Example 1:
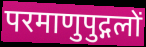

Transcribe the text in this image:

परमाणुपुद्गलों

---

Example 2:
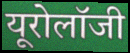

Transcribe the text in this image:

यूरोलॉजी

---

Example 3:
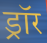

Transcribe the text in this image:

ड्रॉर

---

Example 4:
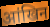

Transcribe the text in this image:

आंखिन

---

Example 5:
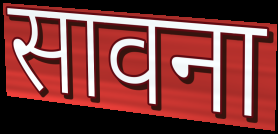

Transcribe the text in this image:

सावना